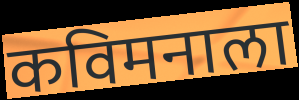
कविमनाला